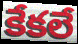
కేకలే